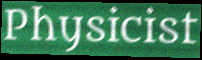
Physicist